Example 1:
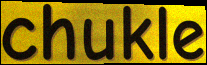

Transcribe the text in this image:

chukle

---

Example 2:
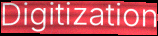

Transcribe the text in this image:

Digitization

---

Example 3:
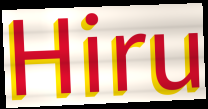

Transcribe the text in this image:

Hiru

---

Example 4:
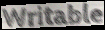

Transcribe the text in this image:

Writable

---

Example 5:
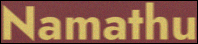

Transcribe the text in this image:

Namathu